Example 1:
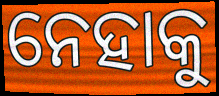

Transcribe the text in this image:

ନେହାକୁ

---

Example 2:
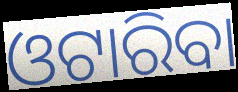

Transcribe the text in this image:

ଓଟାରିବା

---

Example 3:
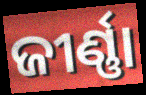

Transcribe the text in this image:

ଜୀର୍ଣ୍ଣା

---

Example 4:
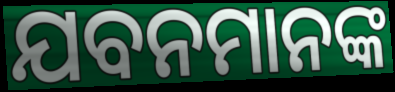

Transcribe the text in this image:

ଯବନମାନଙ୍କ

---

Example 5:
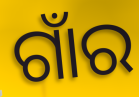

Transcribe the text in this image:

ଗାଁର